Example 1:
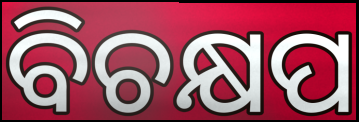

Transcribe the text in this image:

ବିଚକ୍ଷପ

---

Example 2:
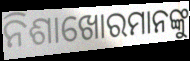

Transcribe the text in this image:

ନିଶାଖୋରମାନଙ୍କୁ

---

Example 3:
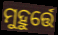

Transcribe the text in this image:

ମୁହୁର୍ତ୍ତେ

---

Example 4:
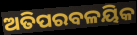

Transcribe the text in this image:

ଅତିପରବଳୟିକ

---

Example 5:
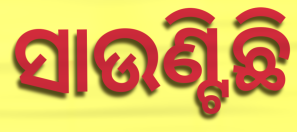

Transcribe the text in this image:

ସାଉଣ୍ଟିଛି